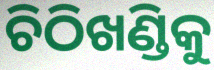
ଚିଠିଖଣ୍ଡିକୁ